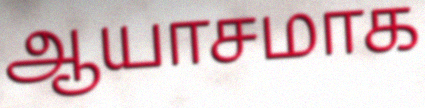
ஆயாசமாக